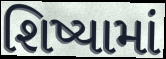
શિષ્યામાં